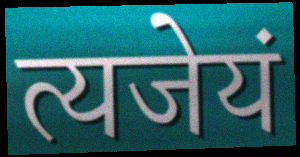
त्यजेयं